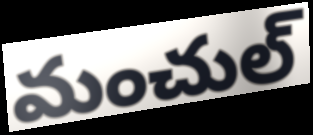
మంచుల్